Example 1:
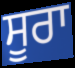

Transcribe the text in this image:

ਸੂਰਾ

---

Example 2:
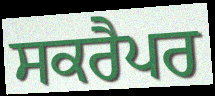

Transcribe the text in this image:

ਸਕਰੈਪਰ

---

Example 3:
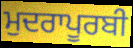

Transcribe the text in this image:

ਮੁਦਰਾਪੂਰਬੀ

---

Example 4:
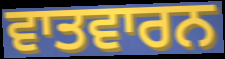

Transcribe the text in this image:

ਵਾਤਵਾਰਨ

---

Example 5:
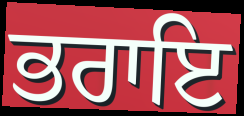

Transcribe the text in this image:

ਭਰਾਇ